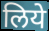
लिये